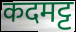
कदमट्ट